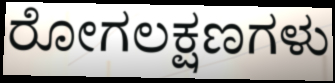
ರೋಗಲಕ್ಷಣಗಳು